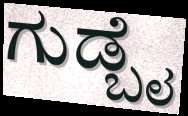
ಗುಡ್ಬೈ